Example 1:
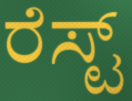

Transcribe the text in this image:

ರೆಸ್ಟ್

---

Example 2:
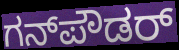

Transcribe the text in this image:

ಗನ್‌ಪೌಡರ್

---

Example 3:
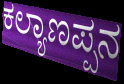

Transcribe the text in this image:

ಕಲ್ಯಾಣಪ್ಪನ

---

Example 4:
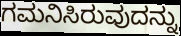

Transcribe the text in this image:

ಗಮನಿಸಿರುವುದನ್ನು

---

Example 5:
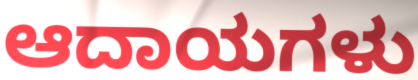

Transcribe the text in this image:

ಆದಾಯಗಳು